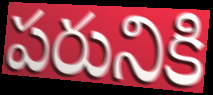
పరునికి